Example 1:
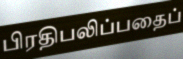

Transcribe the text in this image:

பிரதிபலிப்பதைப்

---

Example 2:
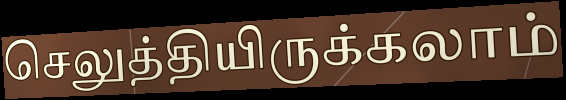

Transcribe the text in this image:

செலுத்தியிருக்கலாம்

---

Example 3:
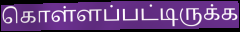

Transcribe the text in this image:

கொள்ளப்பட்டிருக்க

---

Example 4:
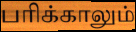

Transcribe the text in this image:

பரிக்காலும்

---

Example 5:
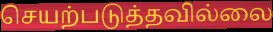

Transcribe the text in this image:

செயற்படுத்தவில்லை